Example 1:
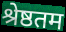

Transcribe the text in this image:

श्रेष्ठतम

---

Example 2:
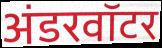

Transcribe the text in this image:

अंडरवॉटर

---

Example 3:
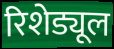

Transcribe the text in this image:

रिशेड्यूल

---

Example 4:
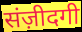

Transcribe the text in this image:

संज़ीदगी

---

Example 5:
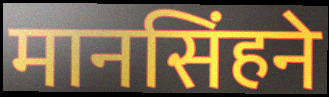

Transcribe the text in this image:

मानसिंहने